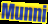
Munni